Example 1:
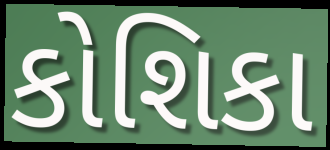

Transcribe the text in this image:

કોશિકા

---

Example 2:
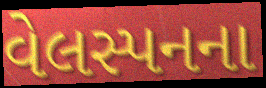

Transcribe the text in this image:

વેલસ્પનના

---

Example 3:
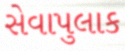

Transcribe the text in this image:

સેવાપુલાક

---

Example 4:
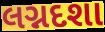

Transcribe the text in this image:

લગ્નદશા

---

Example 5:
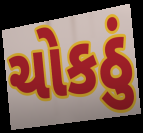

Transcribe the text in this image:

ચોકઠું